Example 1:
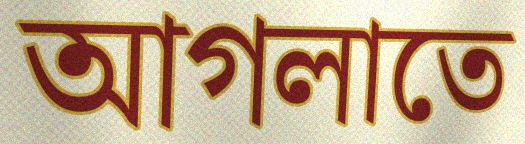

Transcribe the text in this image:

আগলাতে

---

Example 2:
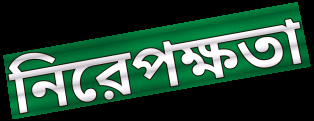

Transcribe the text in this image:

নিরেপক্ষতা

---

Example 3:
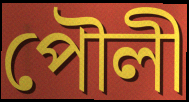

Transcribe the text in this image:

পৌলী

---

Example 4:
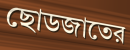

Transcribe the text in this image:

ছোডজাতের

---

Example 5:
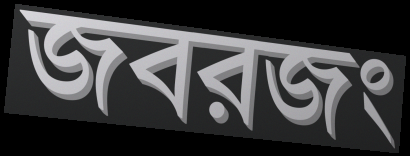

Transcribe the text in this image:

জবরজং